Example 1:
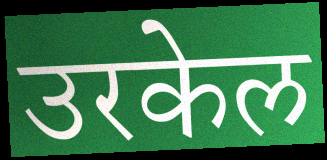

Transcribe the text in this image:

उरकेल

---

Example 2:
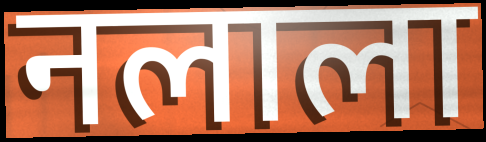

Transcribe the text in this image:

नलाला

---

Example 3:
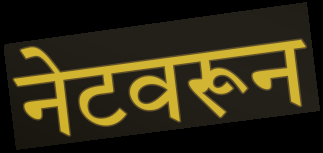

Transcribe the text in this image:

नेटवरून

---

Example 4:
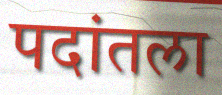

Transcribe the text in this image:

पदांतला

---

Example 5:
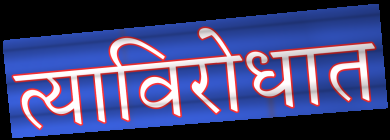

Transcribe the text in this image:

त्याविरोधात